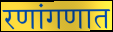
रणांगणात